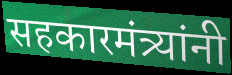
सहकारमंत्र्यांनी